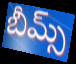
బీమ్స్